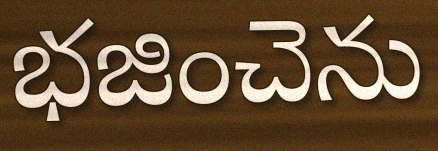
భజించెను